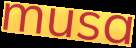
musa